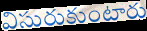
విసురుకుంటారు